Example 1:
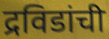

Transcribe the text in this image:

द्रविडांची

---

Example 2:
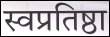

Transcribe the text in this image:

स्वप्रतिष्ठा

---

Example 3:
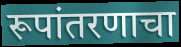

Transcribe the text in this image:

रूपांतरणाचा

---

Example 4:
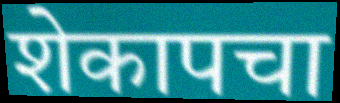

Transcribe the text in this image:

शेकापचा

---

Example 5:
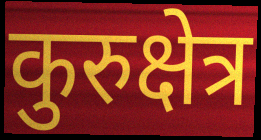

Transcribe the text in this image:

कुरुक्षेत्र